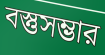
বস্তুসম্ভার